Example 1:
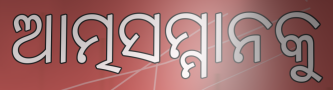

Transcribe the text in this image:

ଆତ୍ମସମ୍ମାନକୁ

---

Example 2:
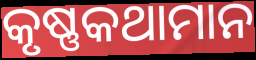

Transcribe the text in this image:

କୃଷ୍ଣକଥାମାନ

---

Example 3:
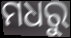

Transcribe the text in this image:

ମଧରୁ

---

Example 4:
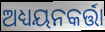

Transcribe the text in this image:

ଅଧ୍ୟୟନକର୍ତ୍ତା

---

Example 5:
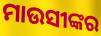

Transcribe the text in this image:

ମାଉସୀଙ୍କର